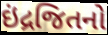
ઇંદ્રજિતનો